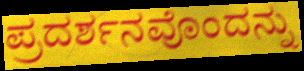
ಪ್ರದರ್ಶನವೊಂದನ್ನು